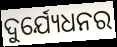
ଦୁର୍ଯ୍ୟେଧନର